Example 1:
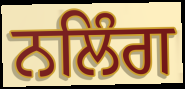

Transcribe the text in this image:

ਨਲਿੰਗ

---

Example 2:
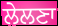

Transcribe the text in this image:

ਲੇਲਣਾ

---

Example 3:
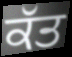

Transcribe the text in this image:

ਕੱਤ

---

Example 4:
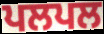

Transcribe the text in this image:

ਪਲਪਲ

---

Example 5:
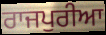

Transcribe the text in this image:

ਰਾਜਪੁਰੀਆ